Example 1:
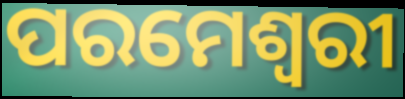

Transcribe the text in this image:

ପରମେଶ୍ୱରୀ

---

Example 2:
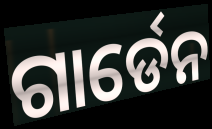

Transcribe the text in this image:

ଗାର୍ଡେନ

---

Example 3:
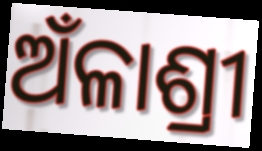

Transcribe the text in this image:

ଅଁଳାଶ୍ରୀ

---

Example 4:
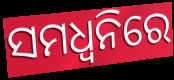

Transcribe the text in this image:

ସମଧ୍ୱନିରେ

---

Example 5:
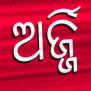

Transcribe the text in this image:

ଅର୍ଜ୍ଜି